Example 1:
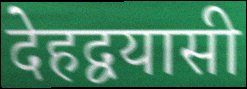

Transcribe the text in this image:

देहद्वयासी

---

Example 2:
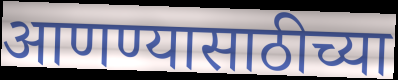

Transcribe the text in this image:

आणण्यासाठीच्या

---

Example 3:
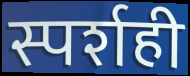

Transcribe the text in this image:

स्पर्शही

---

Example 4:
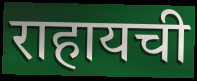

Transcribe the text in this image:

राहायची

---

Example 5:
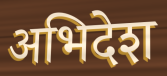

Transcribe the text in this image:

अभिदेश